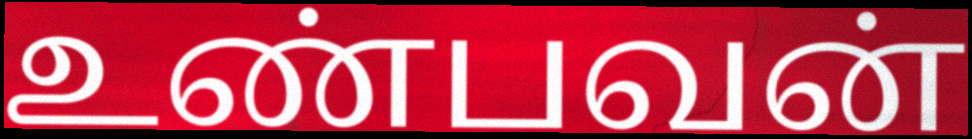
உண்பவன்